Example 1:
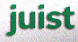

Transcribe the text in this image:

juist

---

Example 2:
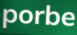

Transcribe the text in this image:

porbe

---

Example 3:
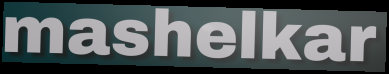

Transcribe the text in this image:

mashelkar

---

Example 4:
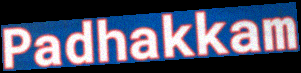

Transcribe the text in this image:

Padhakkam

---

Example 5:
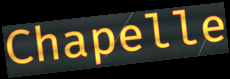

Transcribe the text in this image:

Chapelle